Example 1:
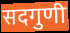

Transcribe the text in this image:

सदगुणी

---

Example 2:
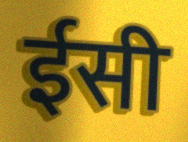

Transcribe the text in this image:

ईसी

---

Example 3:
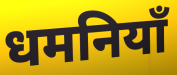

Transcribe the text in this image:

धमनियाँ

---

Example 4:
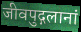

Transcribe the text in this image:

जीवपुद्गलानां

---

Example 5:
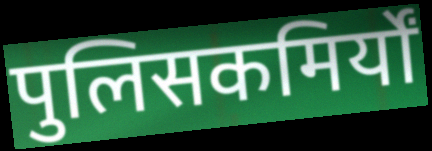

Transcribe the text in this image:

पुलिसकमिर्यों